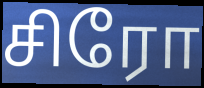
சிரோ